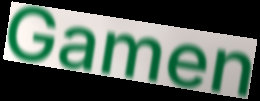
Gamen